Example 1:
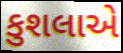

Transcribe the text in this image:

કુશલાએ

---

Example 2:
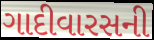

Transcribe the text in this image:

ગાદીવારસની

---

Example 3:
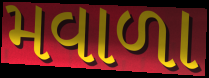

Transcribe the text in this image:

મવાળા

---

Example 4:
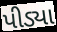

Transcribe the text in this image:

પીડ્યા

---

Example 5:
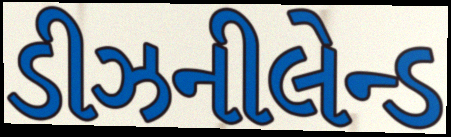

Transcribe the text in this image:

ડીઝનીલેન્ડ